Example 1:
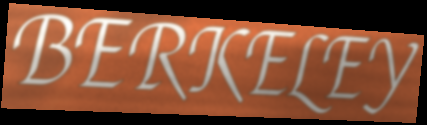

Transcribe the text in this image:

BERKELEY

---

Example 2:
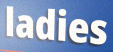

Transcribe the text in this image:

ladies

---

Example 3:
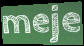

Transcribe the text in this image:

meje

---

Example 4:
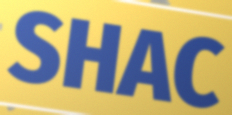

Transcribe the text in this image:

SHAC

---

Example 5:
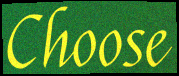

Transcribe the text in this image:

Choose